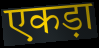
एकड़ा